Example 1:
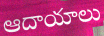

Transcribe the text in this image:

ఆదాయాలు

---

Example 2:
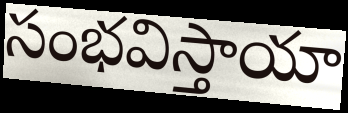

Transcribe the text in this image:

సంభవిస్తాయా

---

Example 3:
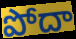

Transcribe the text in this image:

పోదా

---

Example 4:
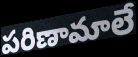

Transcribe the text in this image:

పరిణామాలే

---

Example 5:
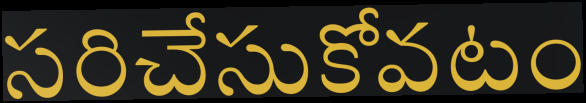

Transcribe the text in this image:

సరిచేసుకోవటం